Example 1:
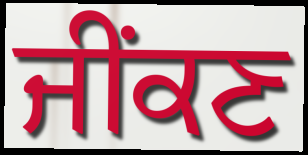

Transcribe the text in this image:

ਜੀਂਕਣ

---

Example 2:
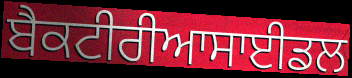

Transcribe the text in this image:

ਬੈਕਟੀਰੀਆਸਾਈਡਲ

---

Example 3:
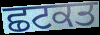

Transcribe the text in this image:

ਛਟਕਤ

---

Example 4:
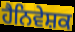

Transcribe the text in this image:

ਹੈਨਿਵੇਸ਼ਕ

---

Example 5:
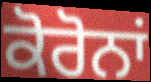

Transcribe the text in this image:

ਕੋਰੋਨਾਂ